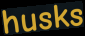
husks